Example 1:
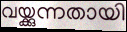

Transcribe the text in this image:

വയ്ക്കുന്നതായി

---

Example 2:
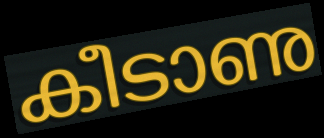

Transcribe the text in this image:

കീടാണു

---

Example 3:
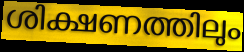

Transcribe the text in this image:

ശിക്ഷണത്തിലും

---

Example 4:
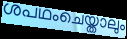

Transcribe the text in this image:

ശപഥംചെയ്താലും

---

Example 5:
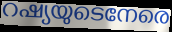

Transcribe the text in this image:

റഷ്യയുടെനേരെ